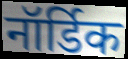
नॉर्डिक